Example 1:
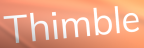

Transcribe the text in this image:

Thimble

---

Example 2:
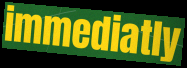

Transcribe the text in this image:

immediatly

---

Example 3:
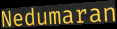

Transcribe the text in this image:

Nedumaran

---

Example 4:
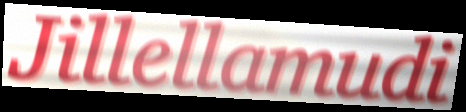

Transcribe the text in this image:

Jillellamudi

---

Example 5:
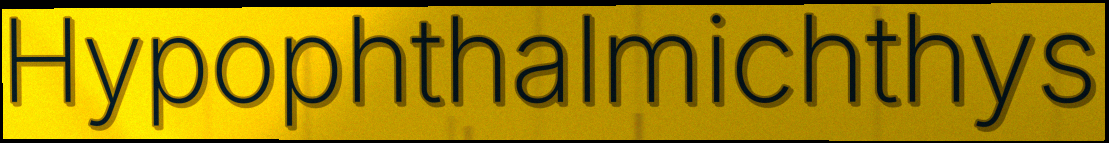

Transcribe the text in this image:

Hypophthalmichthys